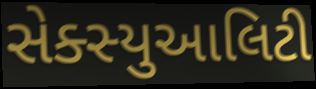
સેક્સ્યુઆલિટી